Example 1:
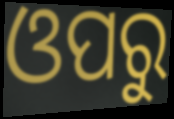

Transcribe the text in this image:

ଓପରୁ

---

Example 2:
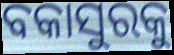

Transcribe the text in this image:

ବକାସୁରକୁ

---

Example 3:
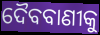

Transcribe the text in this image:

ଦୈବବାଣୀକୁ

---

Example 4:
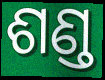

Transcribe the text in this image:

ଶଣ୍ଡ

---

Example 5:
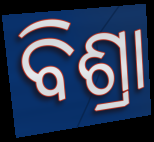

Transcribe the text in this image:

ବିଶ୍ରା